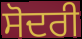
ਸੋਦਰੀ